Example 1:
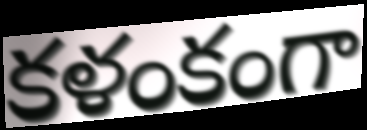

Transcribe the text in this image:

కళంకంగా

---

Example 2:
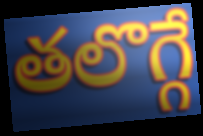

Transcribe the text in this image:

తలొగ్గే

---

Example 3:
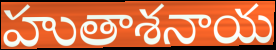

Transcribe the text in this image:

హుతాశనాయ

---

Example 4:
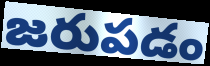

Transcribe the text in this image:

జరుపడం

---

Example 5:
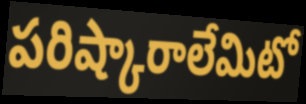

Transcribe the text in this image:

పరిష్కారాలేమిటో